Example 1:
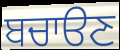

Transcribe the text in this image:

ਬਚਾੳਣ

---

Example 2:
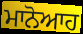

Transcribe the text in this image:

ਮਾਨੋਆਹ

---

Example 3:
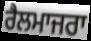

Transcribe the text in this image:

ਰੈਲਮਾਜਰਾ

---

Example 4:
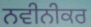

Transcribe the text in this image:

ਨਵੀਨੀਕਰ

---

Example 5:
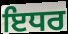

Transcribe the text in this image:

ਇਧਰ